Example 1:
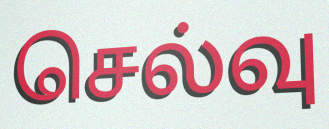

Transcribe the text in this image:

செல்வு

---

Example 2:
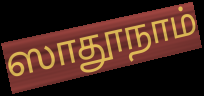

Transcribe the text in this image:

ஸாதூநாம்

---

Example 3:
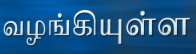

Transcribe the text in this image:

வழங்கியுள்ள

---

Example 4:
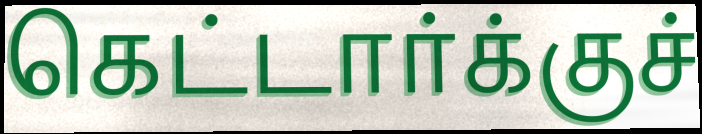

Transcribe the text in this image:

கெட்டார்க்குச்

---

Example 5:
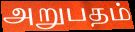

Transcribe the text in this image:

அறுபதம்